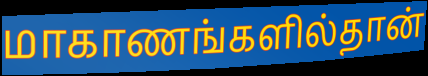
மாகாணங்களில்தான்